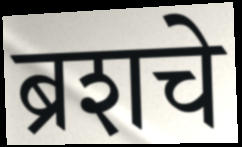
ब्रशचे